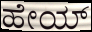
ಹೇಯ್